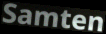
Samten